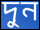
দুন